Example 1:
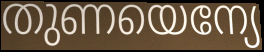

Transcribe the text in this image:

തുണയെന്യേ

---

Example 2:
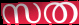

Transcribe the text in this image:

സത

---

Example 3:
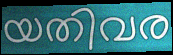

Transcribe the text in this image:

യതിവര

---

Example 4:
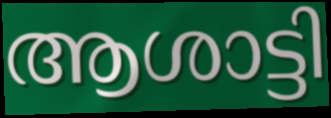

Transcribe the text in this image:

ആശാട്ടി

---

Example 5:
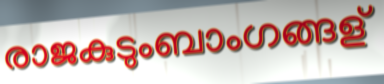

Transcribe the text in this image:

രാജകുടുംബാംഗങ്ങള്